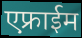
एफ्राईम